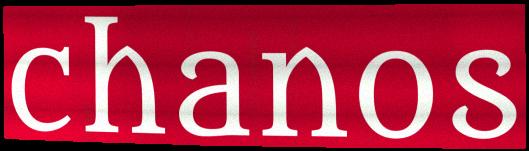
chanos